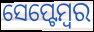
ସେପ୍ଟେମ୍ୱର